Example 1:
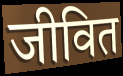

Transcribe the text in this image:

जीवित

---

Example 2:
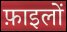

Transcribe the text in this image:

फ़ाइलों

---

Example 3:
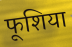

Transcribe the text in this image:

फूशिया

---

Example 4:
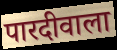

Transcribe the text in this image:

पारदीवाला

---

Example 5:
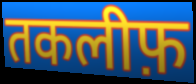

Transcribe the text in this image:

तकलीफ़